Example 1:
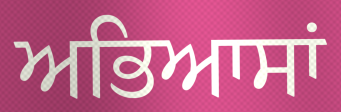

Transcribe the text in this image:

ਅਭਿਆਸਾਂ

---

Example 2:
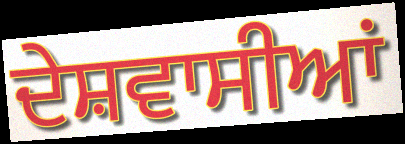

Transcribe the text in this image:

ਦੇਸ਼ਵਾਸੀਆਂ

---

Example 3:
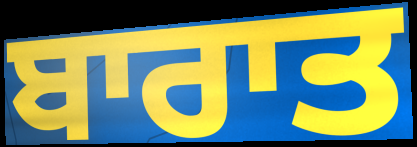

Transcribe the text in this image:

ਬਾਰਾਤ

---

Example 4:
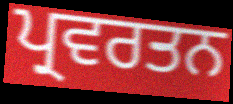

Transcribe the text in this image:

ਪ੍ਰਵਰਤਨ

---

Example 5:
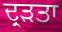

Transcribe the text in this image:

ਦ੍ਰੜਤਾ